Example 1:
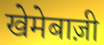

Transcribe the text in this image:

खेमेबाज़ी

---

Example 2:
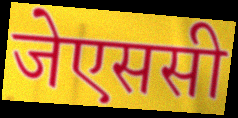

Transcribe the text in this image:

जेएससी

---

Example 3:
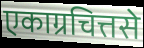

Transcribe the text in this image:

एकाग्रचित्तसे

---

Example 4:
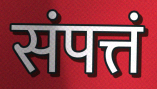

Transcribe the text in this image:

संपत्तं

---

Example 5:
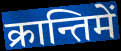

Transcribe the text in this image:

क्रान्तिमें